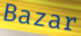
Bazar